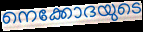
നെക്കോദയുടെ